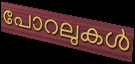
പോറലുകൾ